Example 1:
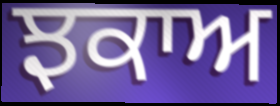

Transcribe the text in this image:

ਝਕਾਅ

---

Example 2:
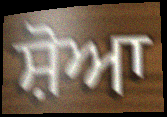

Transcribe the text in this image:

ਸ਼ੋਆ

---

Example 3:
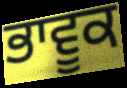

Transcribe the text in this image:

ਭਾਵੂਕ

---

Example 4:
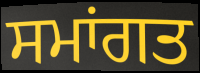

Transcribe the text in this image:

ਸਮਾਂਗਤ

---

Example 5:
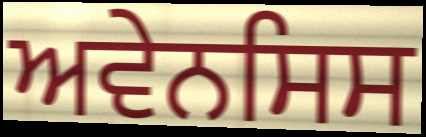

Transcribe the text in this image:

ਅਵੇਨਸਿਸ